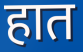
हात